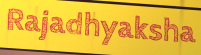
Rajadhyaksha